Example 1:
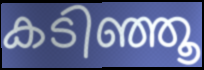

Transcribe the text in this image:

കടിഞ്ഞൂ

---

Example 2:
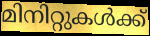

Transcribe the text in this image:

മിനിറ്റുകൾക്ക്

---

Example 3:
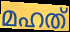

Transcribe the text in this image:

മഹത്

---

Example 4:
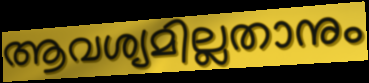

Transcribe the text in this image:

ആവശ്യമില്ലതാനും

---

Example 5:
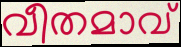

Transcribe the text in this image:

വീതമാവ്